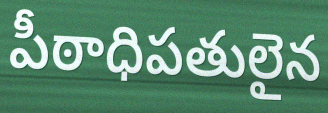
పీఠాధిపతులైన